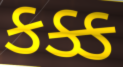
કક્ક